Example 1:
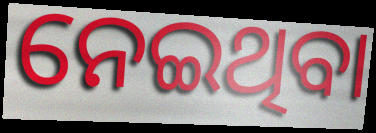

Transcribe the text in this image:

ନେଇଥିବା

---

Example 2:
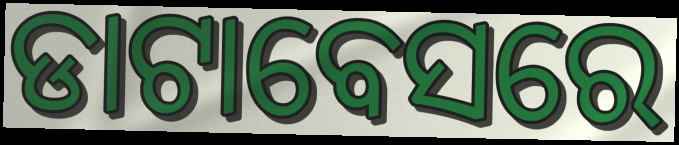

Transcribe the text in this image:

ଡାଟାବେସରେ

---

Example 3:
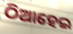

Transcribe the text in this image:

ଠିଆହେଇ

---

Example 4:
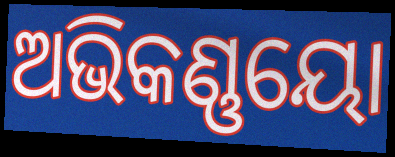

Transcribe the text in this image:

ଅଭିକଣ୍ଣୟୋ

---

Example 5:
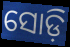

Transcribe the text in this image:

ସୋଡ଼ି